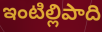
ఇంటిల్లిపాది